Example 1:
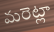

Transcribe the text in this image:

మరెట్లా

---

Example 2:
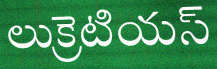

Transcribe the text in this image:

లుక్రెటియస్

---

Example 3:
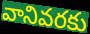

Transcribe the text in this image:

వానివరకు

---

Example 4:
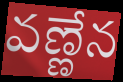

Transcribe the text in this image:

వణ్ణేన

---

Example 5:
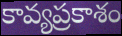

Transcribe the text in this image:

కావ్యప్రకాశం